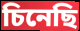
চিনেছি